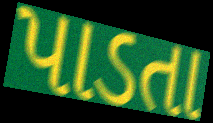
પાડતા